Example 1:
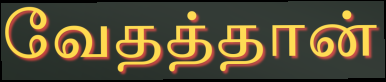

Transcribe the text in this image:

வேதத்தான்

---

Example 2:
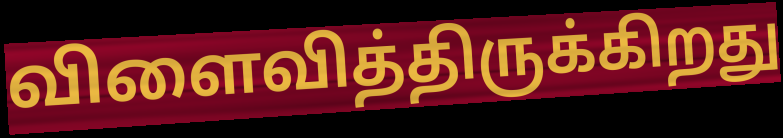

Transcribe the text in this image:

விளைவித்திருக்கிறது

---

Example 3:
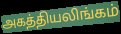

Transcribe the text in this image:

அகத்தியலிங்கம்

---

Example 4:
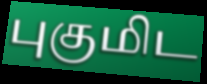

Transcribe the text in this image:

புகுமிட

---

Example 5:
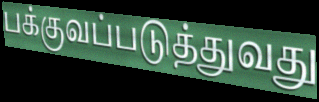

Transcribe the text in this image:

பக்குவப்படுத்துவது